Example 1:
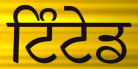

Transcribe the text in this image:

ਟਿੰਟੇਡ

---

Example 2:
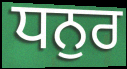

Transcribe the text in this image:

ਧਨੁਰ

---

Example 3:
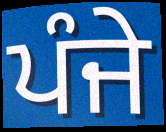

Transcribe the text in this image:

ਪੰਜੇ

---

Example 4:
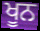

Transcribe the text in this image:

ਖੂਨ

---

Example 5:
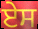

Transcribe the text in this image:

ਏਸ